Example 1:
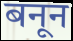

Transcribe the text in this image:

बनून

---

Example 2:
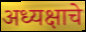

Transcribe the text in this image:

अध्यक्षाचे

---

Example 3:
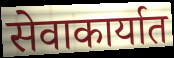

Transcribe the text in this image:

सेवाकार्यात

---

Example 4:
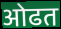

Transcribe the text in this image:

ओढत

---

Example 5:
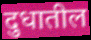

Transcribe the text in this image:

दुधातील